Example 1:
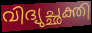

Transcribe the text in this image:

വിദ്യുച്ഛക്തി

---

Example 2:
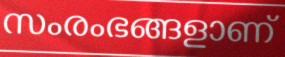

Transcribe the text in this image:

സംരംഭങ്ങളാണ്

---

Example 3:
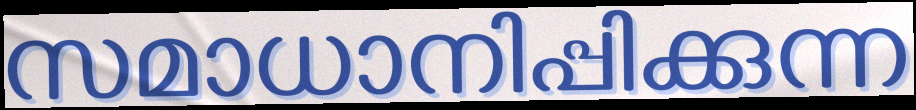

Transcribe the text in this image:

സമാധാനിപ്പിക്കുന്ന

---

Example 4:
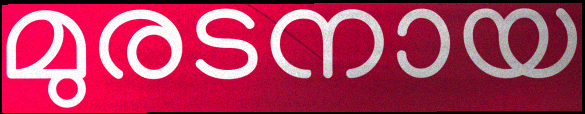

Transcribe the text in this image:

മുരടനായ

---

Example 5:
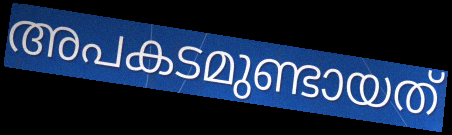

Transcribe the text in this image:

അപകടമുണ്ടായത്